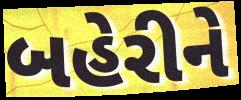
બહેરીને